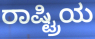
ರಾಷ್ಟ್ರಿಯ